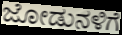
ಜೋಡುನಳಿಗೆ